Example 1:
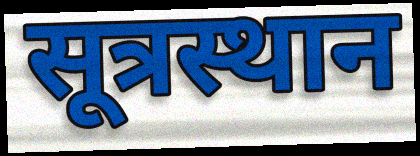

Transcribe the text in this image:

सूत्रस्थान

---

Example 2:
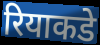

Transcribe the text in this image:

रियाकडे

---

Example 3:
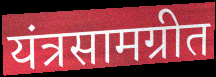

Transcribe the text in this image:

यंत्रसामग्रीत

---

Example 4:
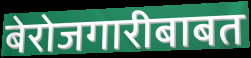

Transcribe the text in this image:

बेरोजगारीबाबत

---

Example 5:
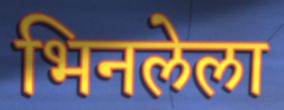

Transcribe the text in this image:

भिनलेला